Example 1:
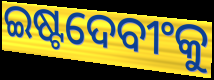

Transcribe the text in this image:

ଇଷ୍ଟଦେବୀଂକୁ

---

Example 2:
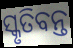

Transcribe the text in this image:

ସ୍କୃତିବନ୍ତ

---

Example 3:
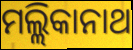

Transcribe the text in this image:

ମଲ୍ଲିକାନାଥ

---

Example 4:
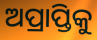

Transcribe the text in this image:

ଅପ୍ରାପ୍ତିକୁ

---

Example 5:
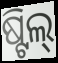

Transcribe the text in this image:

ଷ୍ଟିଲ୍